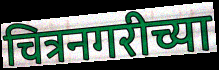
चित्रनगरीच्या